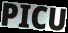
PICU